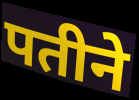
पतीने